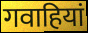
गवाहियां